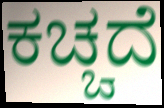
ಕಚ್ಚದೆ